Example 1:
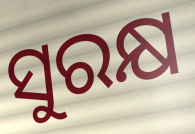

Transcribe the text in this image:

ସୁରକ୍ଷ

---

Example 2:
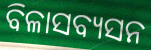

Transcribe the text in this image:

ବିଳାସବ୍ୟସନ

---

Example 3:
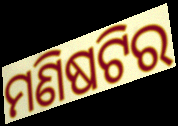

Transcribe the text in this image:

ମଣିଷଟିର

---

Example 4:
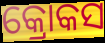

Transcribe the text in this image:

କ୍ରୋକସ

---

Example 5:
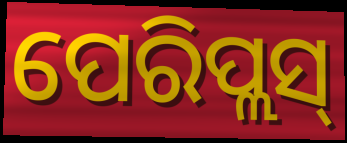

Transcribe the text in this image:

ପେରିପ୍ଲସ୍